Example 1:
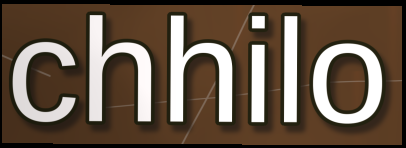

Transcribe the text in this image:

chhilo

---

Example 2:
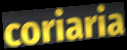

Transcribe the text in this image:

coriaria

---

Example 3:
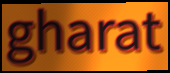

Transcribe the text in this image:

gharat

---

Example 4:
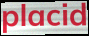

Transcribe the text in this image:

placid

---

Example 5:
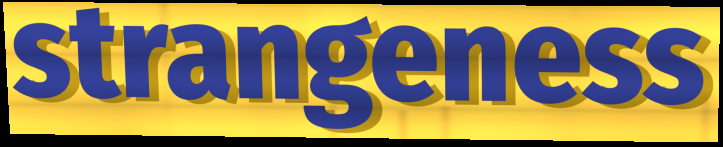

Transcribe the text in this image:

strangeness